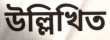
উল্লিখিত